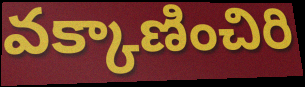
వక్కాణించిరి